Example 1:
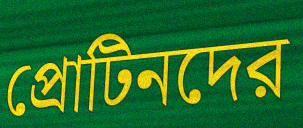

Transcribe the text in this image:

প্রোটিনদের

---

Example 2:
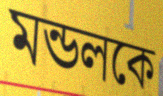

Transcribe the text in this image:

মন্ডলকে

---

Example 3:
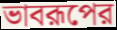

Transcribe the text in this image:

ভাবরূপের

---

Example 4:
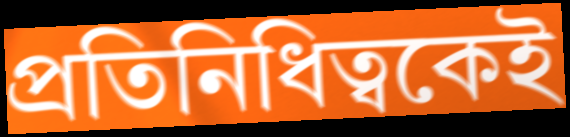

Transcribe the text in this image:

প্রতিনিধিত্বকেই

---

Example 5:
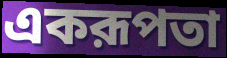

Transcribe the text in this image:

একরূপতা